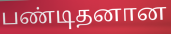
பண்டிதனான